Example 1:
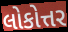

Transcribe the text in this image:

લોકોત્તર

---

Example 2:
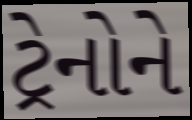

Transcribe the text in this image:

ટ્રેનોને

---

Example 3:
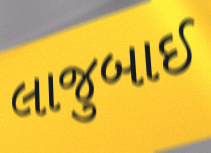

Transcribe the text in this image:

લાજુબાઈ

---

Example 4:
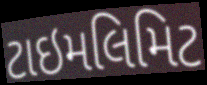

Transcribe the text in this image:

ટાઇમલિમિટ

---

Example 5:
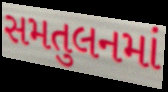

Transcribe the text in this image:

સમતુલનમાં